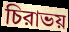
চিরাভয়